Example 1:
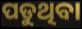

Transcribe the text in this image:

ପଡୁଥିବା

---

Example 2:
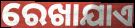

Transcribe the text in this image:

ରେଖାଯାଏ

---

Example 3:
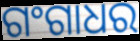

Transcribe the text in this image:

ଗଂଗାଧର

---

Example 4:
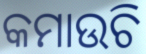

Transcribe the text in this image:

କମାଉଚି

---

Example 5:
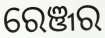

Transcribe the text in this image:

ରେଞ୍ଜର